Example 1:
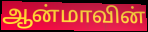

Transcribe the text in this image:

ஆன்மாவின்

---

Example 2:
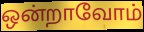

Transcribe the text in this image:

ஒன்றாவோம்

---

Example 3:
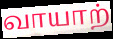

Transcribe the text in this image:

வாயாற்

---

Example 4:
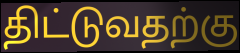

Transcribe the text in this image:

திட்டுவதற்கு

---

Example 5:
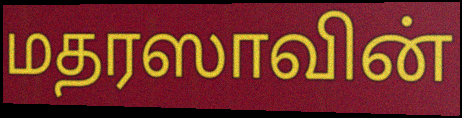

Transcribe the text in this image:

மதரஸாவின்